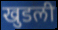
खुडली